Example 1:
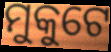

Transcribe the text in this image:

ମୁକୁଟେ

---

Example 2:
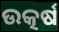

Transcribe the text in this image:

ଉତ୍କର୍ଷ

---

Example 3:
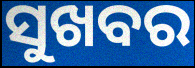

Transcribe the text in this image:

ସୁଖବର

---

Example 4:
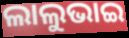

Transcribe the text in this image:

ଲାଲୁଭାଇ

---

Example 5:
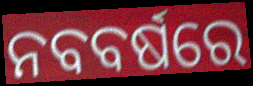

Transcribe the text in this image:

ନବବର୍ଷରେ